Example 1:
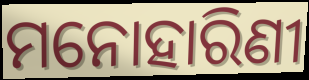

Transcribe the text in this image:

ମନୋହାରିଣୀ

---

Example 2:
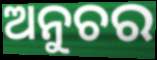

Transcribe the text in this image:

ଅନୁଚର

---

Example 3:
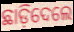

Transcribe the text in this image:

ଛାଡ଼ିଦେଲେ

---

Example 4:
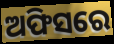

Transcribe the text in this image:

ଅଫିସରେ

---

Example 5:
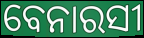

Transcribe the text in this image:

ବେନାରସୀ